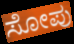
ಸೋಪು